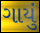
ગાયું